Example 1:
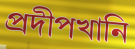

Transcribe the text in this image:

প্রদীপখানি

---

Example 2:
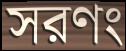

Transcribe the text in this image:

সরণং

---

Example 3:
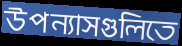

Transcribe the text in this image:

উপন্যাসগুলিতে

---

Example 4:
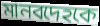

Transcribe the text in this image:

মানবদেহকে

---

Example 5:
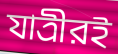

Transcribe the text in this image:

যাত্রীরই